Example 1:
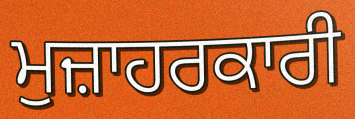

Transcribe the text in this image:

ਮੁਜ਼ਾਹਰਕਾਰੀ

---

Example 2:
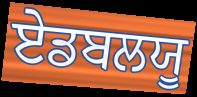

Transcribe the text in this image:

ਏਡਬਲਯੂ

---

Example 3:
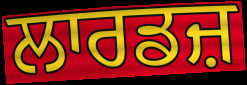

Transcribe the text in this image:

ਲਾਰਡਜ਼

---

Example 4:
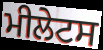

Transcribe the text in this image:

ਮੀਲੇਟਸ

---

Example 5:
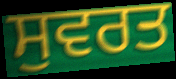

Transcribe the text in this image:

ਸੁਵਰਤ